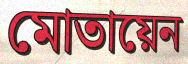
মোতায়েন